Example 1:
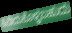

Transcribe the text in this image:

ಹಿಡಿದುಕೊಳ್ಳಬಹುದು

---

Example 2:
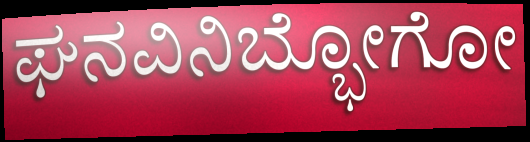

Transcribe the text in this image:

ಘನವಿನಿಬ್ಭೋಗೋ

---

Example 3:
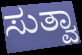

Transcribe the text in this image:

ಸುತ್ವಾ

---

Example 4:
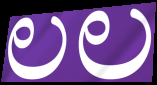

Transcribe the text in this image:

ಲಲ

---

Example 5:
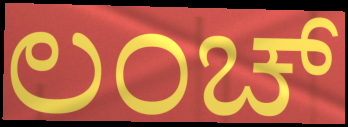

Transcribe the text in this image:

ಲಂಚ್